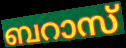
ബറാസ്